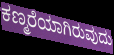
ಕಣ್ಮರೆಯಾಗಿರುವುದು